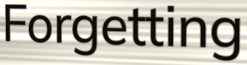
Forgetting